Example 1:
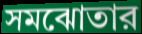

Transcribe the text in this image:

সমঝোতার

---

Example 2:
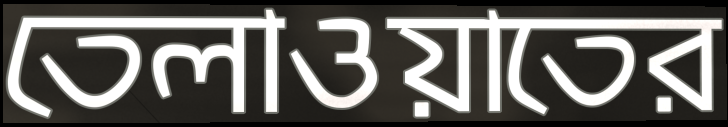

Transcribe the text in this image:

তেলাওয়াতের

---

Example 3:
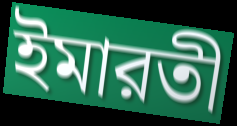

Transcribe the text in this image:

ইমারতী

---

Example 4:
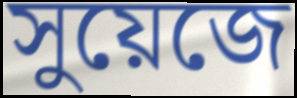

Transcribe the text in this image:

সুয়েজে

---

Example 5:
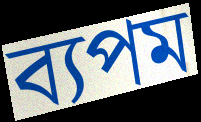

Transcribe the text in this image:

ব্যপম